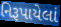
નિરૂપાયેલાં